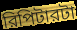
রিপিটারটা